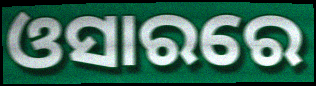
ଓସାରରେ